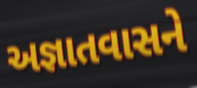
અજ્ઞાતવાસને